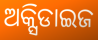
ଅକ୍ସିଡାଇଜ